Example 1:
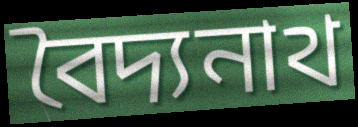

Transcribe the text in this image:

বৈদ্যনাথ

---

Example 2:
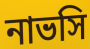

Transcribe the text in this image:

নাভসি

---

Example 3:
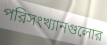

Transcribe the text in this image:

পরিসংখ্যানগুলোর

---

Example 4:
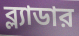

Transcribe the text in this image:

ব্ল্যাডার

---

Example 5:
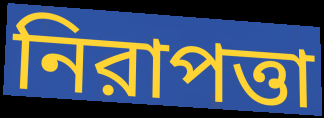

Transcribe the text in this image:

নিরাপত্তা